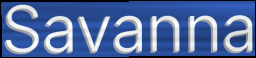
Savanna